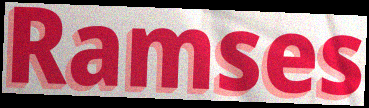
Ramses